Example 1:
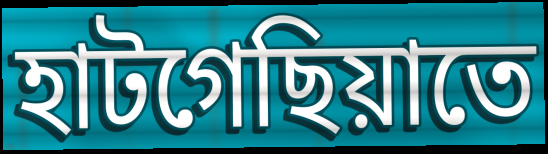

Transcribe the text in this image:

হাটগেছিয়াতে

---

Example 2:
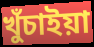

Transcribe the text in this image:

খুঁচাইয়া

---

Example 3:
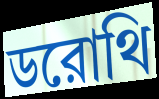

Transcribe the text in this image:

ডরোথি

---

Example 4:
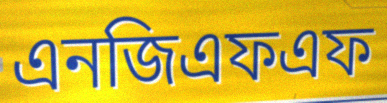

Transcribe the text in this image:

এনজিএফএফ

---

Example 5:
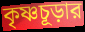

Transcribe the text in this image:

কৃষ্ণচূড়ার